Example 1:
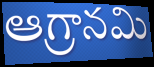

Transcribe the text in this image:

ఆగ్రానమి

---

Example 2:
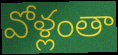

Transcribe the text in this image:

వోళ్లంతా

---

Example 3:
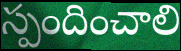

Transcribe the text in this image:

స్పందించాలి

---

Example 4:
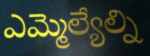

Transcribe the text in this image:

ఎమ్మెల్యేల్ని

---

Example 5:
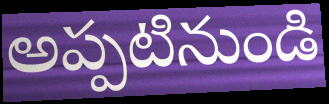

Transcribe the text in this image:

అప్పటినుండి